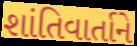
શાંતિવાર્તાને